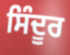
ਸਿੰਦੂਰ